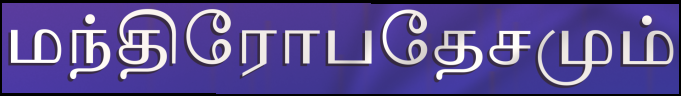
மந்திரோபதேசமும்